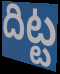
దిట్ట